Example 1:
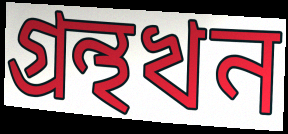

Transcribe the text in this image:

গ্ৰন্থখন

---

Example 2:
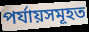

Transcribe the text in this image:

পৰ্যায়সমূহত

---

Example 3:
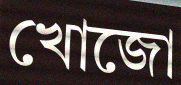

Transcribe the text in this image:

খোজো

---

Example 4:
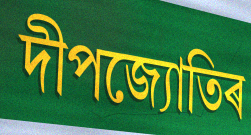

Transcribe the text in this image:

দীপজ্যোতিৰ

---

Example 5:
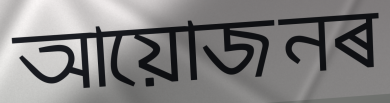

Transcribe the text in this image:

আয়োজনৰ